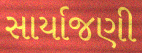
સાર્યાજણી